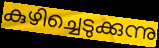
കുഴിച്ചെടുക്കുന്നു